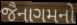
જૈનાગમનો